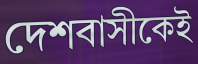
দেশবাসীকেই